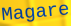
Magare